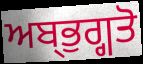
ਅਬ੍ਭੁਗ੍ਗਤੋ